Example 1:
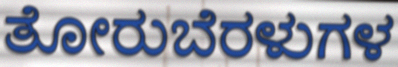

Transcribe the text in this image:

ತೋರುಬೆರಳುಗಳ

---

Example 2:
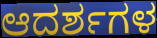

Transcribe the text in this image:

ಆದರ್ಶಗಳ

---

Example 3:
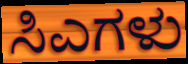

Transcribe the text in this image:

ಸಿಎಗಳು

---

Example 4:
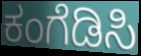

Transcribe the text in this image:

ಕಂಗೆಡಿಸಿ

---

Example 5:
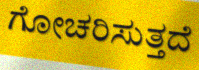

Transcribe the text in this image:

ಗೋಚರಿಸುತ್ತದೆ